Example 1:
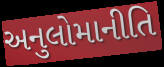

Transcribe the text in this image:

અનુલોમાનીતિ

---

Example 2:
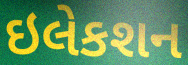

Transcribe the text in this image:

ઇલેકશન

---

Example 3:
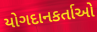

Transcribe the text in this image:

યોગદાનકર્તાઓ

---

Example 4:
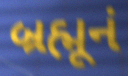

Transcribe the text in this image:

બ્રહ્મૂનં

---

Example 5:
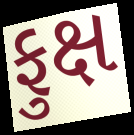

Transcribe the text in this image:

ફુક્ષ